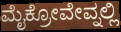
ಮೈಕ್ರೋವೇವ್ನಲ್ಲಿ